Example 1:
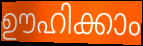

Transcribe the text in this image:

ഊഹിക്കാം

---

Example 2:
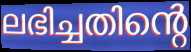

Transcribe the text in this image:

ലഭിച്ചതിന്റെ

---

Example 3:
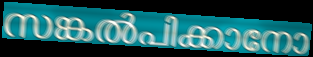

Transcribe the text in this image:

സങ്കൽപിക്കാനോ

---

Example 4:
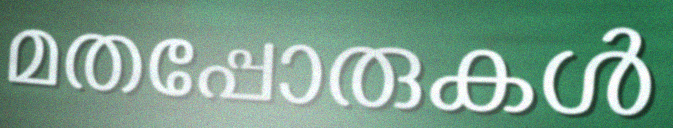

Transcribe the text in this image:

മതപ്പോരുകൾ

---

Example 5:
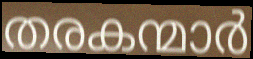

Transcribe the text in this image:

തരകന്മാർ